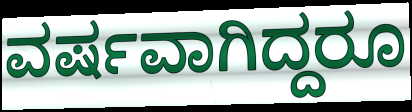
ವರ್ಷವಾಗಿದ್ದರೂ